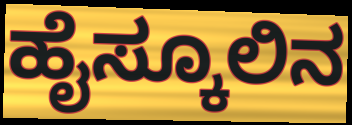
ಹೈಸ್ಕೂಲಿನ